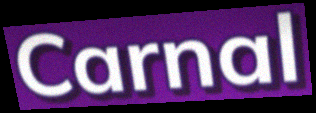
Carnal